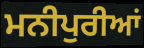
ਮਨੀਪੁਰੀਆਂ